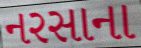
નરસાના